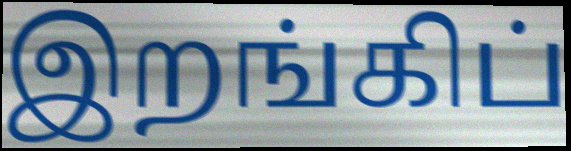
இறங்கிப்